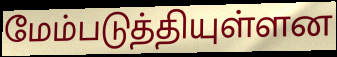
மேம்படுத்தியுள்ளன